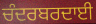
ਚੰਦਰਬਰਦਾਈ